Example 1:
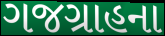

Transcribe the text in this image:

ગજગ્રાહના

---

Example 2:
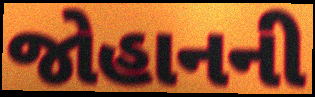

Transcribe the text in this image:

જોહાનની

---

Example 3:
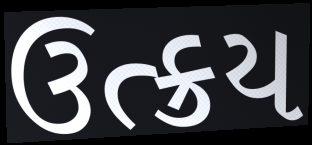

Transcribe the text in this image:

ઉત્ક્રય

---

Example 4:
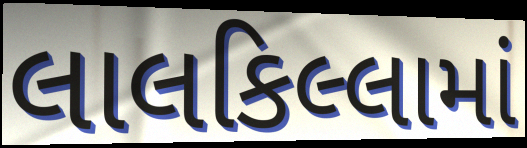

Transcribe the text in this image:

લાલકિલ્લામાં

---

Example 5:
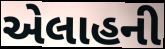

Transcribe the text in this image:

એલાહની